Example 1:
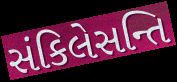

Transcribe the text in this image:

સંકિલેસન્તિ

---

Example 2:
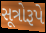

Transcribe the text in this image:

સૂત્રોરૂપે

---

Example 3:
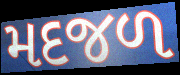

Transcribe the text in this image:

મદજળ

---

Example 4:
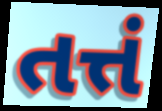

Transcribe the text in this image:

તત્તં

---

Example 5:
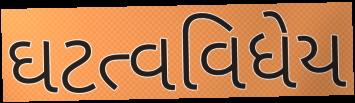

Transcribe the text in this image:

ઘટત્વવિધેય